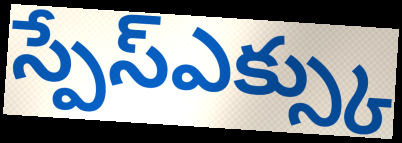
స్పేస్ఎక్స్కు